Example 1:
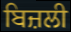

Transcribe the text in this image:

ਬਿਜ਼ਲੀ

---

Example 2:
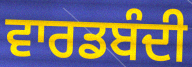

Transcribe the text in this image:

ਵਾਰਡਬੰਦੀ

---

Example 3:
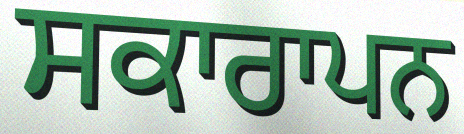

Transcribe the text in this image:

ਸਕਾਰਾਪਨ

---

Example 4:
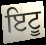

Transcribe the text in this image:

ਇਟੂ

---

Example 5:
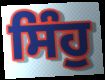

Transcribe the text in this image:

ਸਿੰਹੁ